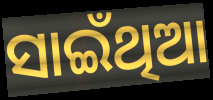
ସାଇଁଥିଆ